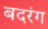
बदरंग